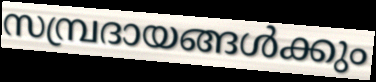
സമ്പ്രദായങ്ങൾക്കും